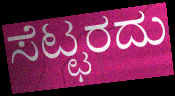
ಸೆಟ್ಟರದು